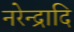
नरेन्द्रादि